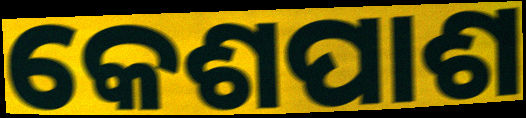
କେଶପାଶ